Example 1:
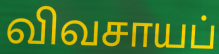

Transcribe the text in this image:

விவசாயப்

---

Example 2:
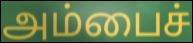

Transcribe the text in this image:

அம்பைச்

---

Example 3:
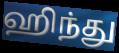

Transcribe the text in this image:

ஹிந்து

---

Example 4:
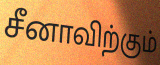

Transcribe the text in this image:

சீனாவிற்கும்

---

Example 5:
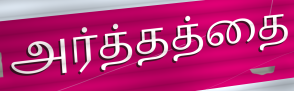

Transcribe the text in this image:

அர்த்தத்தை